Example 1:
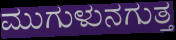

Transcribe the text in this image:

ಮುಗುಳುನಗುತ್ತ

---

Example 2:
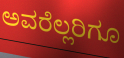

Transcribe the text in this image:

ಅವರೆಲ್ಲರಿಗೂ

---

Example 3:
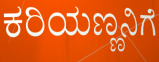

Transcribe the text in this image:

ಕರಿಯಣ್ಣನಿಗೆ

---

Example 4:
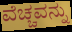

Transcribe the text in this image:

ವೆಚ್ಚವನ್ನು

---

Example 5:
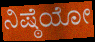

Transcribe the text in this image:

ನಿಷ್ಠೆಯೋ